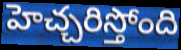
హెచ్చరిస్తోంది